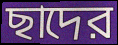
ছাদের